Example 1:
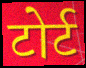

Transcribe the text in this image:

टोर्ट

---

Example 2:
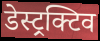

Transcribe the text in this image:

डेस्ट्रक्टिव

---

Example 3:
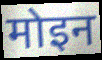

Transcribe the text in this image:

मोइन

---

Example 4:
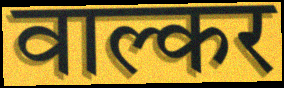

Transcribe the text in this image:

वाल्कर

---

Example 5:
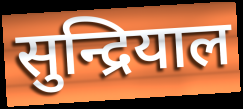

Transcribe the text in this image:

सुन्द्रियाल